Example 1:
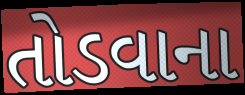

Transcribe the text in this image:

તોડવાના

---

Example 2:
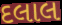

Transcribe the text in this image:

દલાલ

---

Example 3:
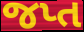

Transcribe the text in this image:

જપ્ત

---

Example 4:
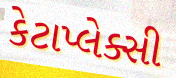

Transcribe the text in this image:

કેટાપ્લેક્સી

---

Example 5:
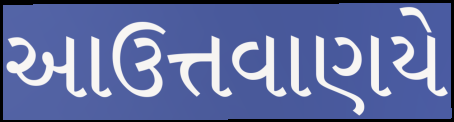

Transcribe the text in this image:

આઉત્તવાણયે